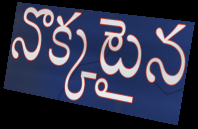
నొక్కటైన